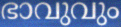
ഭാവുവും